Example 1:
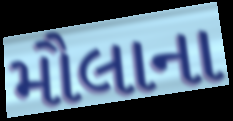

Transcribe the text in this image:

મૌલાના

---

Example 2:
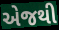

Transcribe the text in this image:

એજથી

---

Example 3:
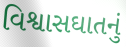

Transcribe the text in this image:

વિશ્વાસઘાતનું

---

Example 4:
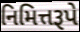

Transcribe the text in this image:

નિમિત્તરૂપે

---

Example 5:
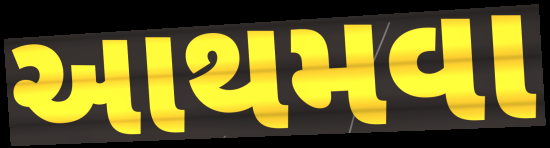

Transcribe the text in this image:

આથમવા